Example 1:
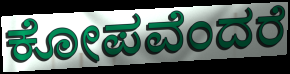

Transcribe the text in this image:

ಕೋಪವೆಂದರೆ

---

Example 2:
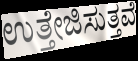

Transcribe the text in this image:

ಉತ್ತೇಜಿಸುತ್ತವೆ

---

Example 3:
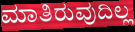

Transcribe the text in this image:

ಮಾತಿರುವುದಿಲ್ಲ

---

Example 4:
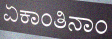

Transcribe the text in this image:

ಏಕಾಂತಿನಾಂ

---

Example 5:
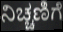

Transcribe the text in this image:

ನಿಚ್ಚಣಿಗೆ